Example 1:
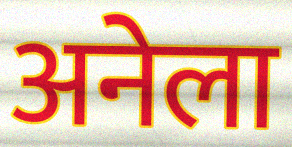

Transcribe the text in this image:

अनेला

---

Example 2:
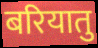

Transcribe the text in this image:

बरियातु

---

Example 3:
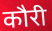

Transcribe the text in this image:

कौरी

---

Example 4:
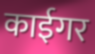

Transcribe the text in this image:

काईगर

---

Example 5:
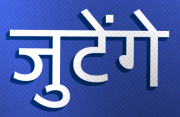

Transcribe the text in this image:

जुटेंगे